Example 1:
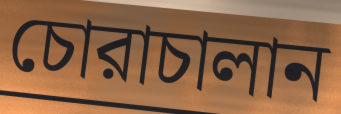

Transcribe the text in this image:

চোরাচালান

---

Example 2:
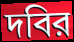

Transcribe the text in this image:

দবির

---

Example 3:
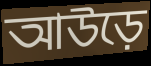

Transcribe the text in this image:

আউড়ে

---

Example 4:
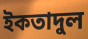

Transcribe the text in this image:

ইকতাদুল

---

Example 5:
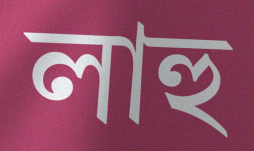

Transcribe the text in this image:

লাহু